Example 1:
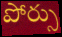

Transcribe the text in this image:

పోర్సు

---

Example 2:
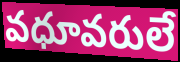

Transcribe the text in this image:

వధూవరులే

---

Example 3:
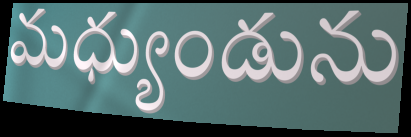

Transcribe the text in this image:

మధ్యుండును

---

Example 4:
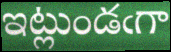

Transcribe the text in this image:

ఇట్లుండఁగా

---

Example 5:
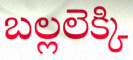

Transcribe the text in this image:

బల్లలెక్కి